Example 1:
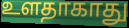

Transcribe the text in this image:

உளதாகாது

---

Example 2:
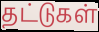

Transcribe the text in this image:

தட்டுகள்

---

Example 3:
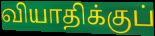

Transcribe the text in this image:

வியாதிக்குப்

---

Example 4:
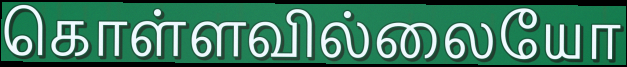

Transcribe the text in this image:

கொள்ளவில்லையோ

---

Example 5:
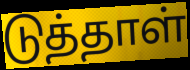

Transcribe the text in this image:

டுத்தாள்